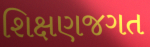
શિક્ષણજગત